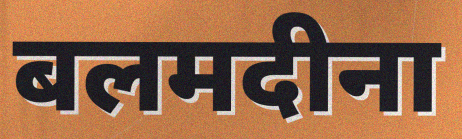
बलमदीना